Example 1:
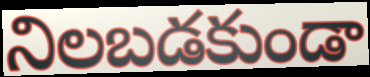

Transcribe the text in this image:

నిలబడకుండా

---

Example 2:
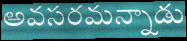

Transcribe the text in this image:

అవసరమన్నాడు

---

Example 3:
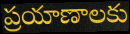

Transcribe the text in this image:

ప్రయాణాలకు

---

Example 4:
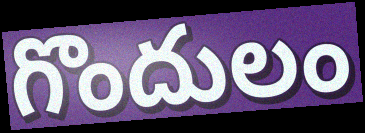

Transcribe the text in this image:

గొందులం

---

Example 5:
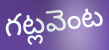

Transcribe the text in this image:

గట్లవెంట